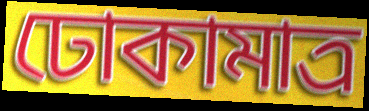
ঢোকামাত্র